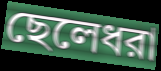
ছেলেধরা